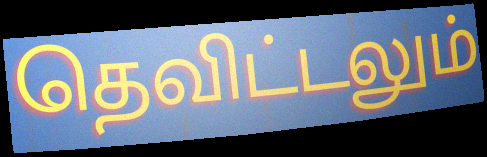
தெவிட்டலும்